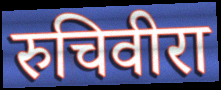
रुचिवीरा